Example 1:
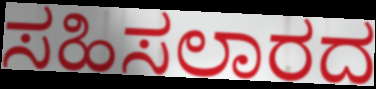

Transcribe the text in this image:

ಸಹಿಸಲಾರದ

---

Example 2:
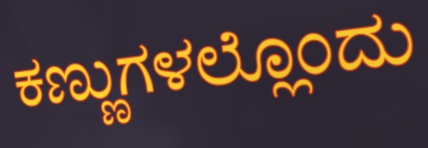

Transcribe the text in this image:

ಕಣ್ಣುಗಳಲ್ಲೊಂದು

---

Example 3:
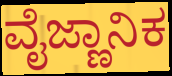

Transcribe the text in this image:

ವೈಜ್ಣಾನಿಕ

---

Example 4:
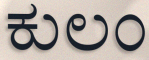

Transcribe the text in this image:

ಕುಲಂ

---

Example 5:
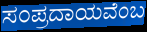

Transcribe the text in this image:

ಸಂಪ್ರದಾಯವೆಂಬ